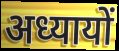
अध्यायों